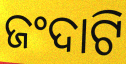
ଜଂଦାଟି